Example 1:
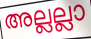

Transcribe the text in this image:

അല്ലല്ലാ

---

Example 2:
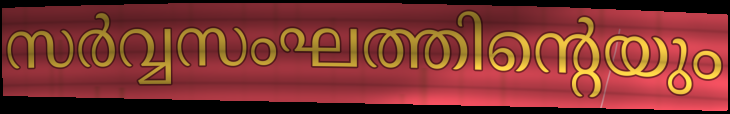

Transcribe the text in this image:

സർവ്വസംഘത്തിന്റെയും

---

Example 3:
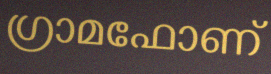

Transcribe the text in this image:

ഗ്രാമഫോണ്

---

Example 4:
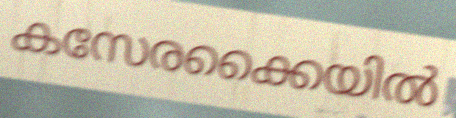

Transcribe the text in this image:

കസേരക്കൈയിൽ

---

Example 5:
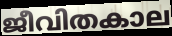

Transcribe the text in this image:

ജീവിതകാല